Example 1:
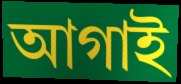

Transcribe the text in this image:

আগাই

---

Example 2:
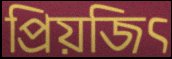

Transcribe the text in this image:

প্রিয়জিৎ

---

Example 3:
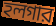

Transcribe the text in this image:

হলগার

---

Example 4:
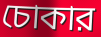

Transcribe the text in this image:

চোকার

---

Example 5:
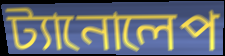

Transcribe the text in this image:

ট্যানোলেপ